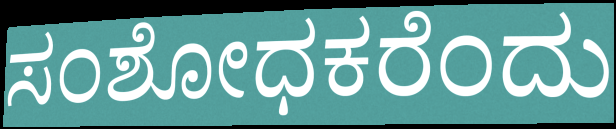
ಸಂಶೋಧಕರೆಂದು